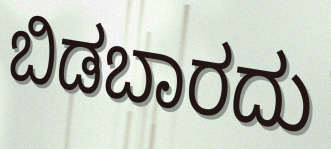
ಬಿಡಬಾರದು